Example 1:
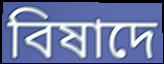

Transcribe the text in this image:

বিষাদে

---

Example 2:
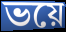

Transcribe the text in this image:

ভয়ে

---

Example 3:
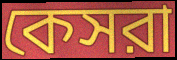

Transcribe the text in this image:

কেসরা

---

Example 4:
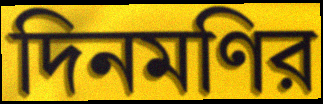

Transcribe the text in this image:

দিনমণির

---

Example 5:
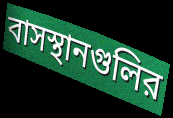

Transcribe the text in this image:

বাসস্থানগুলির